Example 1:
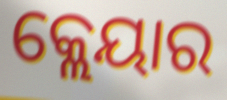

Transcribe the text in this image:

କ୍ଲେୟାର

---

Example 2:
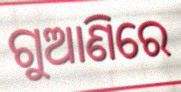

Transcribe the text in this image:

ଗୁଆଣିରେ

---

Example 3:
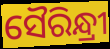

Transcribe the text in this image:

ସୈରିନ୍ଧ୍ରୀ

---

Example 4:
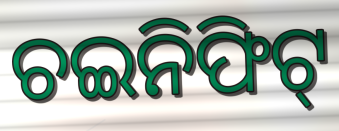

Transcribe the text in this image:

ଚଇନିଫିଟ୍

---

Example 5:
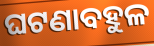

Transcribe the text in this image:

ଘଟଣାବହୁଳ